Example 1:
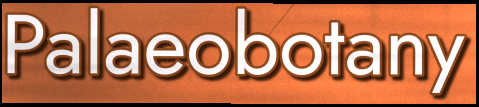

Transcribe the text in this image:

Palaeobotany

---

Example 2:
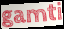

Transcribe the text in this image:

gamti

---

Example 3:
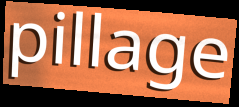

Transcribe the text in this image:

pillage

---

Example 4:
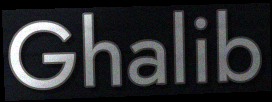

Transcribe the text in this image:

Ghalib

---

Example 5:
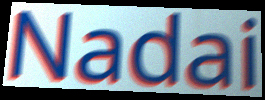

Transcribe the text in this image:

Nadai